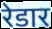
रेडार